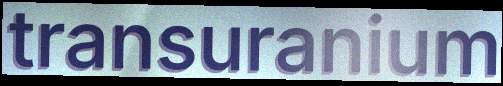
transuranium